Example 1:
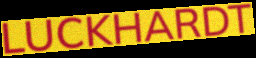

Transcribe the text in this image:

LUCKHARDT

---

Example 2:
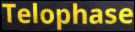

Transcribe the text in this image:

Telophase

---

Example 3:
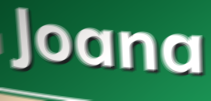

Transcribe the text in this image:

Joana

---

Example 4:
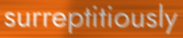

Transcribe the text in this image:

surreptitiously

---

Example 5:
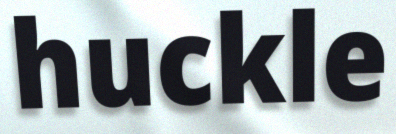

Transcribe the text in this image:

huckle